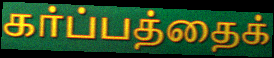
கர்ப்பத்தைக்